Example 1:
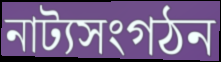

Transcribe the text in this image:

নাট্যসংগঠন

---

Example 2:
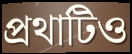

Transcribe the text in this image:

প্রথাটিও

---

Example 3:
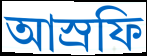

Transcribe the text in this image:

আস্রফি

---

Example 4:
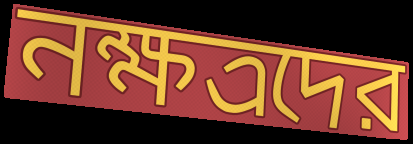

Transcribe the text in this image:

নক্ষত্রদের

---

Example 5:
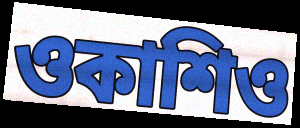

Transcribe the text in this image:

ওকাশিও